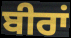
ਬੀਰਾਂ